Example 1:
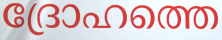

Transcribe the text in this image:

ദ്രോഹത്തെ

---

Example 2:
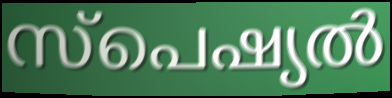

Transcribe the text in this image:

സ്‌പെഷ്യൽ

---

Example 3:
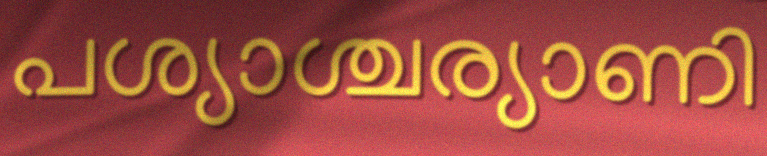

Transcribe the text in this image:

പശ്യാശ്ചര്യാണി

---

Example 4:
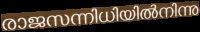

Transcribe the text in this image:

രാജസന്നിധിയിൽനിന്നു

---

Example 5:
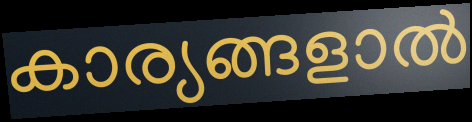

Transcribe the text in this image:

കാര്യങ്ങളാൽ